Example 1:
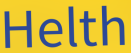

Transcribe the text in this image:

Helth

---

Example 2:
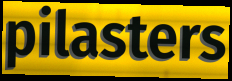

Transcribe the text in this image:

pilasters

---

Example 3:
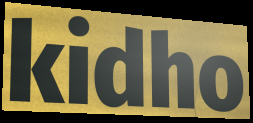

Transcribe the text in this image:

kidho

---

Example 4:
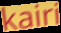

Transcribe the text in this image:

kairi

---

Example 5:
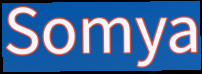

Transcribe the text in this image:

Somya